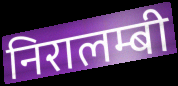
निरालम्बी